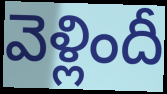
వెళ్లిందీ